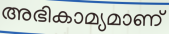
അഭികാമ്യമാണ്